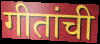
गीतांची